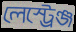
লেস্ট্রেঞ্জ